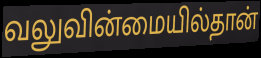
வலுவின்மையில்தான்